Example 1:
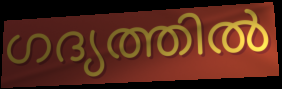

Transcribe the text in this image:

ഗദ്യത്തിൽ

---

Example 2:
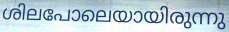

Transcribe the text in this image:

ശിലപോലെയായിരുന്നു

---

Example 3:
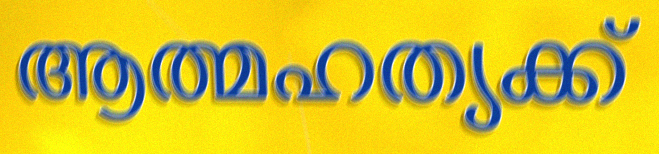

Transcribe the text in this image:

ആത്മഹത്യക്ക്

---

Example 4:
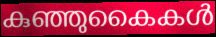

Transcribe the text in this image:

കുഞ്ഞുകൈകൾ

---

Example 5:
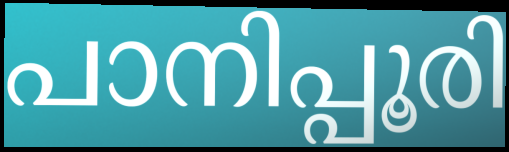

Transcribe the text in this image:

പാനിപ്പൂരി